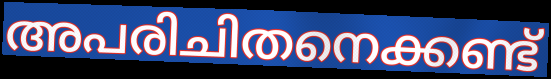
അപരിചിതനെക്കണ്ട്